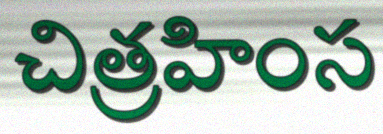
చిత్రహింస